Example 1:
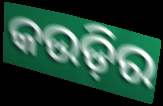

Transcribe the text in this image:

କଉଡ଼ିର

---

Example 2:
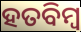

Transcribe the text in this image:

ହତବିମ୍ବ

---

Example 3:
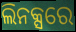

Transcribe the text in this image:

ଲିନକ୍ସରେ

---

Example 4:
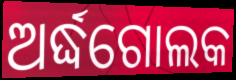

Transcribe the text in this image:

ଅର୍ଦ୍ଧଗୋଲକ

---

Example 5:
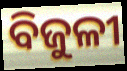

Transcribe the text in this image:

ବିଜୁଳୀ